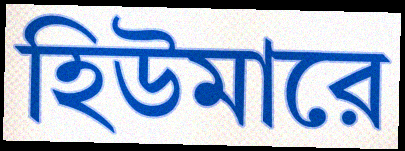
হিউমারে